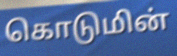
கொடுமின்